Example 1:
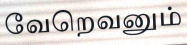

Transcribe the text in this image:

வேறெவனும்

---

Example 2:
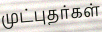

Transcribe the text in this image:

முட்புதர்கள்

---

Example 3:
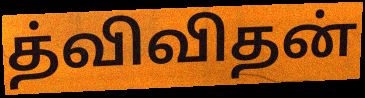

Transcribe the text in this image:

த்விவிதன்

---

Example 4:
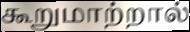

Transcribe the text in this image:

கூறுமாற்றால்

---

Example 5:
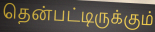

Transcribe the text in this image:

தென்பட்டிருக்கும்